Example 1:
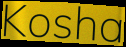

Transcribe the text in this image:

Kosha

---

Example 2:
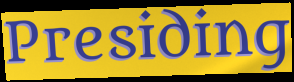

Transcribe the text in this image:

Presiding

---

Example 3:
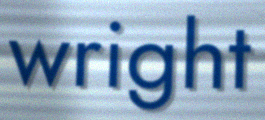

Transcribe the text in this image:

wright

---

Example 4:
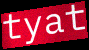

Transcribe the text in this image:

tyat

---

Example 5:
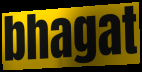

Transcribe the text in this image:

bhagat